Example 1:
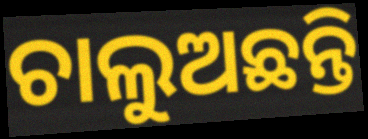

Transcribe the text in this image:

ଚାଲୁଅଛନ୍ତି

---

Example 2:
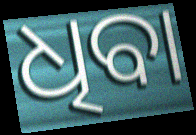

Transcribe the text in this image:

ଧିବା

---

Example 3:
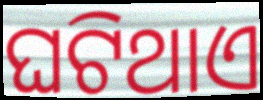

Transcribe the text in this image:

ଘଟିଥାଏ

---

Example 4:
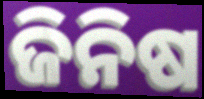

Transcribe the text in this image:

ଜିନିଷ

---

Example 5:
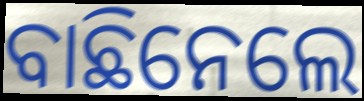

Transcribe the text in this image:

ବାଛିନେଲେ